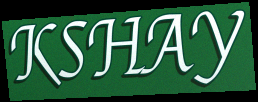
KSHAY